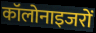
कॉलोनाइजरों